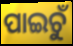
ପାଇଚୁଁ